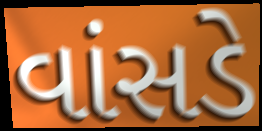
વાંસડે